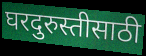
घरदुरुस्तीसाठी